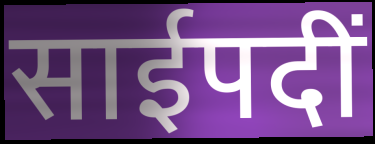
साईपदीं